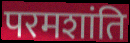
परमशांति